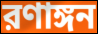
রণাঙ্গন